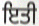
ਇਤੀ